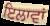
ਇਲਾਵਾਂ